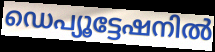
ഡെപ്യൂട്ടേഷനിൽ